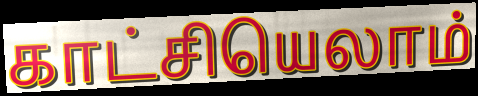
காட்சியெலாம்